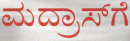
ಮದ್ರಾಸ್‍ಗೆ